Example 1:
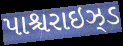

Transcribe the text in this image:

પાશ્ચરાઇઝ્ડ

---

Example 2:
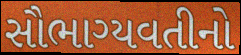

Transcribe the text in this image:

સૌભાગ્યવતીનો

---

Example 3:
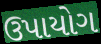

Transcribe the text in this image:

ઉપાયોગ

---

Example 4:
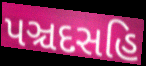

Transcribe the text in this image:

પઞ્ચદસહિ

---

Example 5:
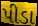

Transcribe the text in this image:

પીડા